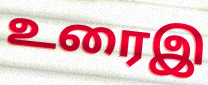
உரைஇ